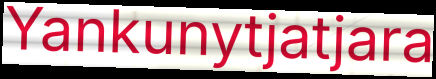
Yankunytjatjara